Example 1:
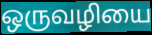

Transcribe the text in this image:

ஒருவழியை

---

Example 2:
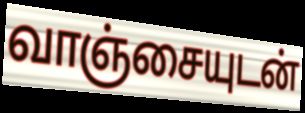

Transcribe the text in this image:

வாஞ்சையுடன்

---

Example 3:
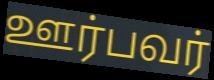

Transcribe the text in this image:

ஊர்பவர்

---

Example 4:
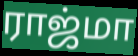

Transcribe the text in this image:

ராஜ்மா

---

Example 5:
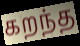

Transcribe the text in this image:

கறந்த